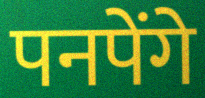
पनपेंगे